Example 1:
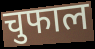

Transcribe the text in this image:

चुफाल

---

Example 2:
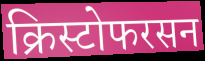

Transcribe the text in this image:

क्रिस्टोफरसन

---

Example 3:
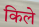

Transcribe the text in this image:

किले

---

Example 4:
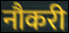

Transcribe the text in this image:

नौकरी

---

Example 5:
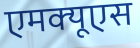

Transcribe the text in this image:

एमक्यूएस